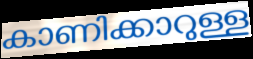
കാണിക്കാറുള്ള